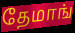
தேமாங்